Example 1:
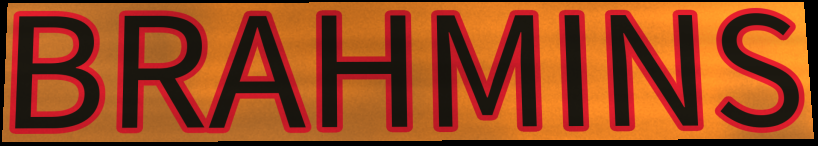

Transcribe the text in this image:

BRAHMINS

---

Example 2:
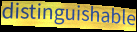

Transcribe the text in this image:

distinguishable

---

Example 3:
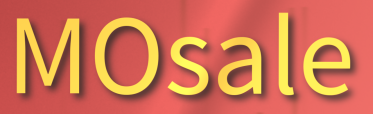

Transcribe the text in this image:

MOsale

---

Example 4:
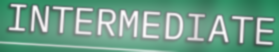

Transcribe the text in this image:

INTERMEDIATE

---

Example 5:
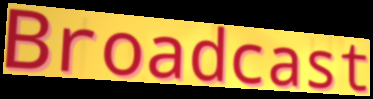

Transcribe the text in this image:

Broadcast